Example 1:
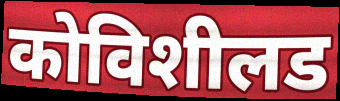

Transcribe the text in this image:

कोविशीलड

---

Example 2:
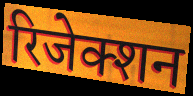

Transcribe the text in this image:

रिजेक्शन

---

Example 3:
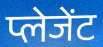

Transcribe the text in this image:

प्लेजेंट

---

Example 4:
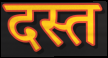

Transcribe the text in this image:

दस्त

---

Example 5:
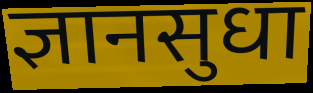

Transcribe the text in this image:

ज्ञानसुधा